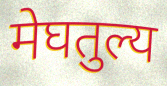
मेघतुल्य